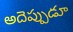
అదెప్పుడూ